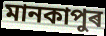
মানকাপুৰ